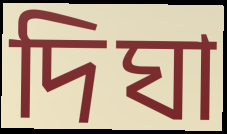
দিঘা